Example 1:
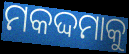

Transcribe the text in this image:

ମକଦ୍ଦମାକୁ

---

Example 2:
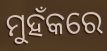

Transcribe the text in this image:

ମୁହଁକରେ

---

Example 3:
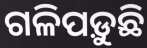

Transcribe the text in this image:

ଗଳିପଡ଼ୁଛି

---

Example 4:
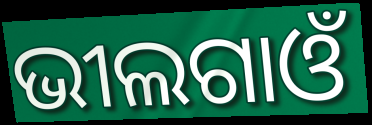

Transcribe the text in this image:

ଭୀଲଗାଓଁ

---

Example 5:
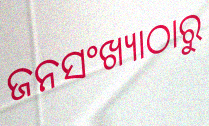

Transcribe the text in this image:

ଜନସଂଖ୍ୟାଠାରୁ